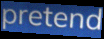
pretend